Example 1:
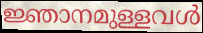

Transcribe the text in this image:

ജ്ഞാനമുള്ളവൾ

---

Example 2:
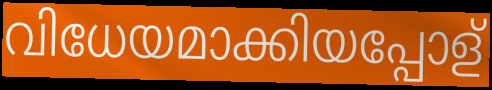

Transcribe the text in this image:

വിധേയമാക്കിയപ്പോള്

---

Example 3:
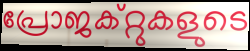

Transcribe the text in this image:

പ്രോജക്റ്റുകളുടെ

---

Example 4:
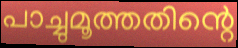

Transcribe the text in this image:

പാച്ചുമൂത്തതിന്റെ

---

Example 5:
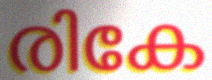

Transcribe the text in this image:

രികേ